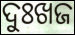
ଦୁଃଖଜ